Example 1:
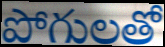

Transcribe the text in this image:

పోగులతో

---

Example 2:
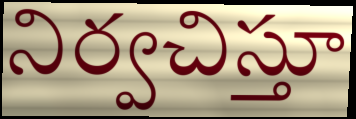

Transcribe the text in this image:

నిర్వచిస్తూ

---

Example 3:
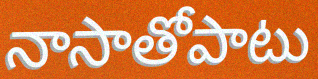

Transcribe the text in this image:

నాసాతోపాటు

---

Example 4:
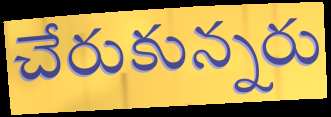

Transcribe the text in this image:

చేరుకున్నరు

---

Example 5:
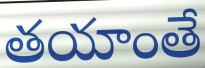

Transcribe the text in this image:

తయాంతే